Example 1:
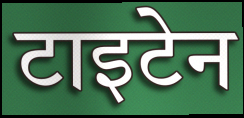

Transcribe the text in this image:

टाइटेन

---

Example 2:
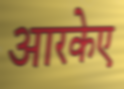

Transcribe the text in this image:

आरकेए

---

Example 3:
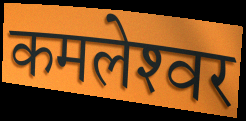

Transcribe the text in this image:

कमलेश्‍वर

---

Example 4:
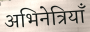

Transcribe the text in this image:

अभिनेत्रियाँ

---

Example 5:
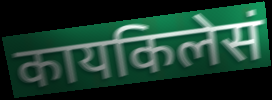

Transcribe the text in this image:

कायकिलेसं